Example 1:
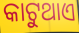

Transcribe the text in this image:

କାଟୁଥାଏ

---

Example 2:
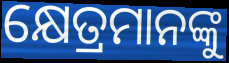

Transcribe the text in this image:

କ୍ଷେତ୍ରମାନଙ୍କୁ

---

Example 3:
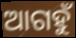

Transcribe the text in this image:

ଆଗହୁଁ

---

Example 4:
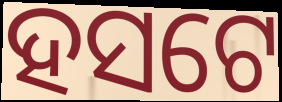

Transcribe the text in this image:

ହସଟେ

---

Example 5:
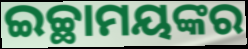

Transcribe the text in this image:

ଇଚ୍ଛାମୟଙ୍କର